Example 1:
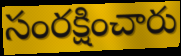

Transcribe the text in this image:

సంరక్షించారు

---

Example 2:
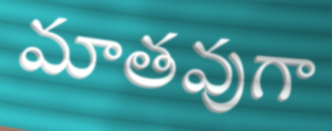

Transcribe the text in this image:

మాతవుగా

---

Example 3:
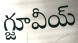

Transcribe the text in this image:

గ్జూవీయ్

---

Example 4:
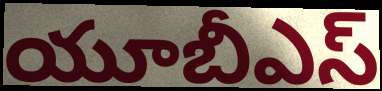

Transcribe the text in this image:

యూబీఎస్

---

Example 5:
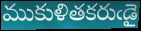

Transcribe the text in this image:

ముకుళితకరుఁడై